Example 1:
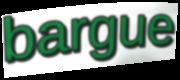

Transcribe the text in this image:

bargue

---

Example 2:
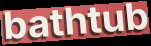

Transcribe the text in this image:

bathtub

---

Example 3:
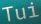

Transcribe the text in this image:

Tui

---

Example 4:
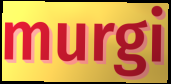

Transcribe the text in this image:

murgi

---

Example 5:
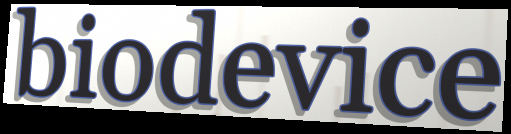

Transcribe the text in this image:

biodevice